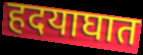
हदयाघात